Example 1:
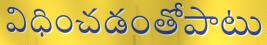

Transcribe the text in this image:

విధించడంతోపాటు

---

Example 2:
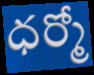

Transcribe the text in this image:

ధర్మో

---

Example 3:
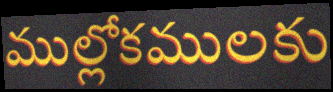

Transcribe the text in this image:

ముల్లోకములకు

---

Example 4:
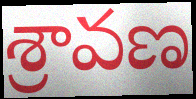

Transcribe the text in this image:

శ్రావణ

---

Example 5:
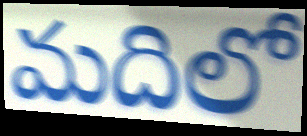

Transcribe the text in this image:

మదిలో